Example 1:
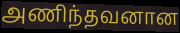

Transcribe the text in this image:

அணிந்தவனான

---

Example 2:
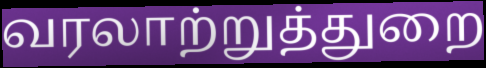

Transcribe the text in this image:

வரலாற்றுத்துறை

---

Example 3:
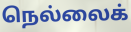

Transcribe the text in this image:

நெல்லைக்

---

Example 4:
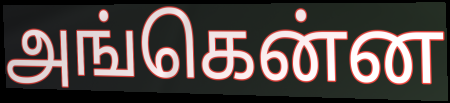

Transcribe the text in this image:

அங்கென்ன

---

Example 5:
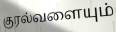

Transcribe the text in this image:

குரல்வளையும்